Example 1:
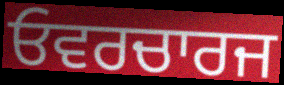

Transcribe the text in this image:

ਓਵਰਚਾਰਜ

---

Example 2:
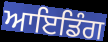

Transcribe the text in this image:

ਆਇਡਿੰਗ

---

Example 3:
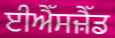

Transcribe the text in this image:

ਈਐੱਸਜ਼ੈੱਡ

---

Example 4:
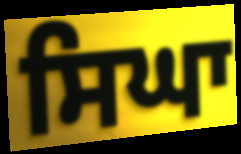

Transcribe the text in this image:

ਸਿਘਾ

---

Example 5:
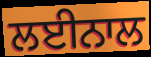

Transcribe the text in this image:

ਲਈਨਾਲ